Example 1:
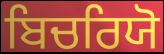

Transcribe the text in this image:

ਬਿਚਰਿਯੋ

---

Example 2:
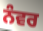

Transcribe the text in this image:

ਨੰਵਰ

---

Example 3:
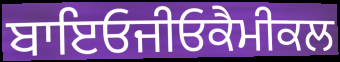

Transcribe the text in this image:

ਬਾਇਓਜੀਓਕੈਮੀਕਲ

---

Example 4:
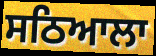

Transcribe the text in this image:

ਸਠਿਆਲਾ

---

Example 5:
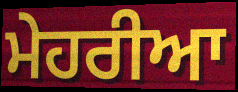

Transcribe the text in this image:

ਮੇਹਰੀਆ